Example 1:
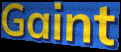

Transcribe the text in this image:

Gaint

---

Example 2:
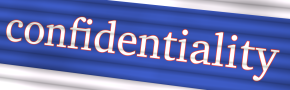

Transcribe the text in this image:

confidentiality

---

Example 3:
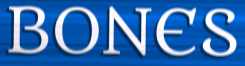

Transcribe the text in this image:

BONES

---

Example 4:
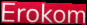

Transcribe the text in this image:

Erokom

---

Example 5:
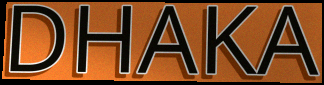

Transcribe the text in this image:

DHAKA